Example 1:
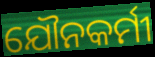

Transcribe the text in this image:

ଯୌନକର୍ମୀ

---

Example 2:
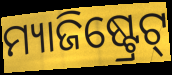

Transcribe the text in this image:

ମ୍ୟାଜିଷ୍ଟ୍ରେଟ୍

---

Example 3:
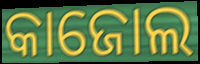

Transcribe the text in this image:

କାଜୋଲ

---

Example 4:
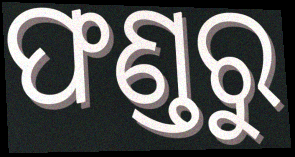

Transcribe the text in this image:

ଫଣ୍ଡରୁ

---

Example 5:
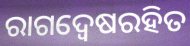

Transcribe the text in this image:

ରାଗଦ୍ୱେଷରହିତ